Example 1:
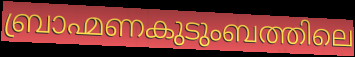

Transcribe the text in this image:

ബ്രാഹ്മണകുടുംബത്തിലെ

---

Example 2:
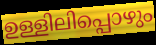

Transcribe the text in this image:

ഉള്ളിലിപ്പൊഴും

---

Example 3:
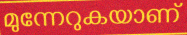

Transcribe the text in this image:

മുന്നേറുകയാണ്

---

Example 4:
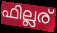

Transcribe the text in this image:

ഫില്ലര്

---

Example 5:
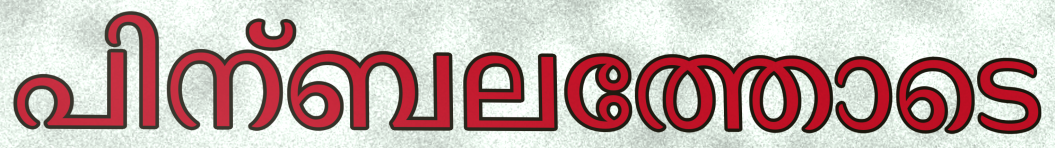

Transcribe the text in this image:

പിന്ബലത്തോടെ